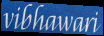
vibhawari